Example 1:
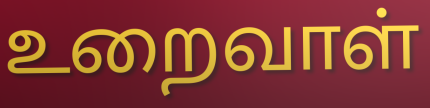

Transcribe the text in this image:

உறைவாள்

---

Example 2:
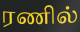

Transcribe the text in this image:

ரணில்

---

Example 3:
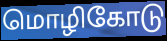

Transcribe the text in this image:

மொழிகோடு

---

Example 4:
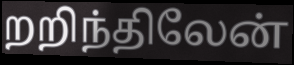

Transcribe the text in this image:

றறிந்திலேன்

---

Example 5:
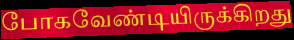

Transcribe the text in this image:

போகவேண்டியிருக்கிறது